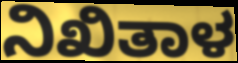
ನಿಖಿತಾಳ